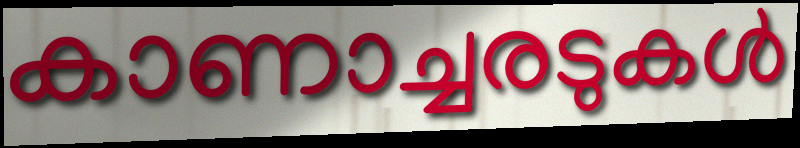
കാണാച്ചരടുകൾ